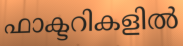
ഫാക്ടറികളിൽ